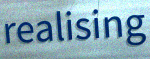
realising